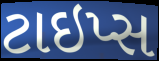
ટાઇપ્સ